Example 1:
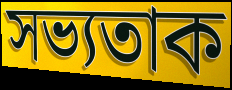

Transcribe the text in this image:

সভ্যতাক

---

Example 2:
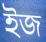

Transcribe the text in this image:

ইজ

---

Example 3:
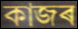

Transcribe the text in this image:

কাজৰ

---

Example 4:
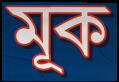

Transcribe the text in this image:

মূক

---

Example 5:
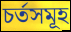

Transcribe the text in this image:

চৰ্তসমূহ